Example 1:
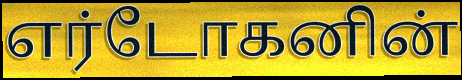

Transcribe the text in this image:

எர்டோகனின்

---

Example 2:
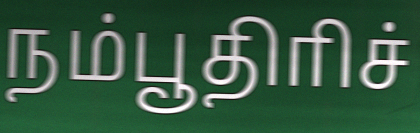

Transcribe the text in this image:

நம்பூதிரிச்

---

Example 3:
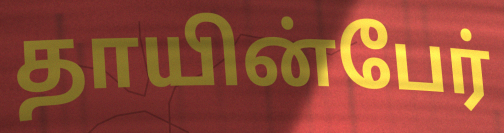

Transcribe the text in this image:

தாயின்பேர்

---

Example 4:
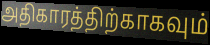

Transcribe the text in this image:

அதிகாரத்திற்காகவும்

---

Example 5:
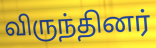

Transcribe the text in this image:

விருந்தினர்